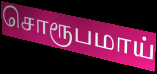
சொரூபமாய்